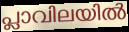
പ്ലാവിലയിൽ